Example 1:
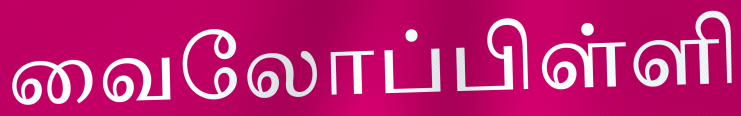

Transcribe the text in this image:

வைலோப்பிள்ளி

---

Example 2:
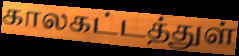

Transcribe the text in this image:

காலகட்டத்துள்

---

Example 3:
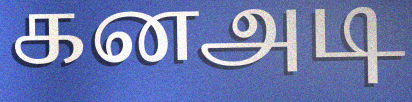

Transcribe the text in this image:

கனஅடி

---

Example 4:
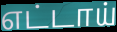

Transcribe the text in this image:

எட்டாய்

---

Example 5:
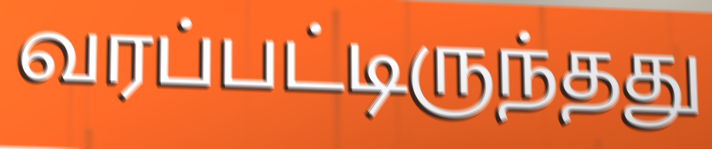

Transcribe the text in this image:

வரப்பட்டிருந்தது